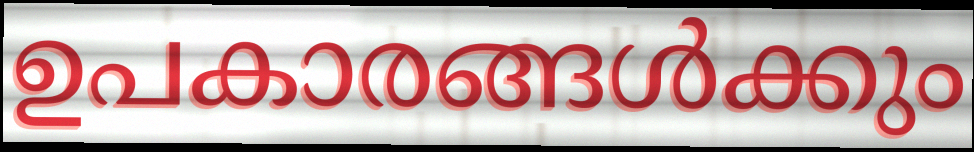
ഉപകാരങ്ങൾക്കും